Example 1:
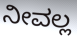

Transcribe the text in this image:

ನೀವಲ್ಲ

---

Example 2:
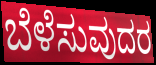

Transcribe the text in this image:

ಬೆಳೆಸುವುದರ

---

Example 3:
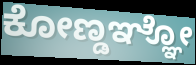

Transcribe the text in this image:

ಕೋಣ್ಡಞ್ಞೋ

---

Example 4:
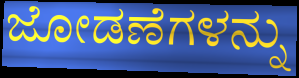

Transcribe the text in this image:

ಜೋಡಣೆಗಳನ್ನು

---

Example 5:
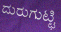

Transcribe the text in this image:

ದುರುಗುಟ್ಟಿ